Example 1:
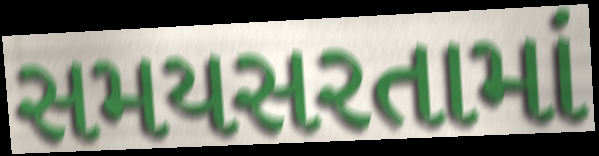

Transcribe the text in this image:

સમયસરતામાં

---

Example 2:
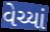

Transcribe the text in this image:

વેચ્યાં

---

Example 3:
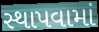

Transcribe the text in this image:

સ્થાપવામાં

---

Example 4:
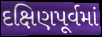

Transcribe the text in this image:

દક્ષિણપૂર્વમાં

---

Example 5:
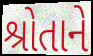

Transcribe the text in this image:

શ્રોતાને